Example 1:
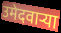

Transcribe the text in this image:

उमेदवार्‍या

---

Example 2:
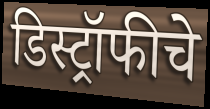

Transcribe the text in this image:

डिस्ट्रॉफीचे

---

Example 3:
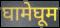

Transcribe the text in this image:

घामेघूम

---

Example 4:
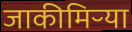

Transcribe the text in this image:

जाकीमिऱ्या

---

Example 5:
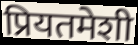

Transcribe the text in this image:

प्रियतमेशी